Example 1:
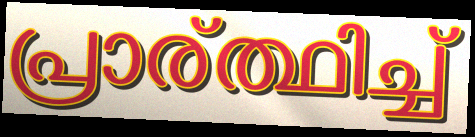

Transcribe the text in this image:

പ്രാര്ത്ഥിച്ച്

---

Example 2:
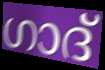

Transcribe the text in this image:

ഗാദ്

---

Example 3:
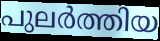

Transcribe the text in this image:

പുലർത്തിയ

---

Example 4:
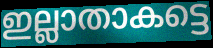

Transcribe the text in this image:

ഇല്ലാതാകട്ടെ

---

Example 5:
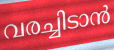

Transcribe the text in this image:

വരച്ചിടാൻ